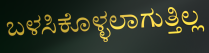
ಬಳಸಿಕೊಳ್ಳಲಾಗುತ್ತಿಲ್ಲ